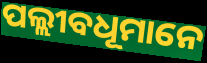
ପଲ୍ଲୀବଧୂମାନେ